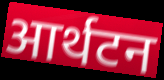
आर्थटन